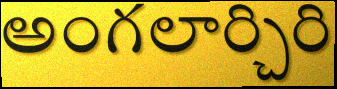
అంగలార్చిరి